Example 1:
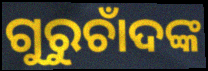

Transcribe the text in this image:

ଗୁରୁଚାଁଦଙ୍କ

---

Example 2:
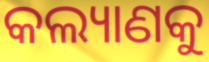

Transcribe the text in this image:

କଲ୍ୟାଣକୁ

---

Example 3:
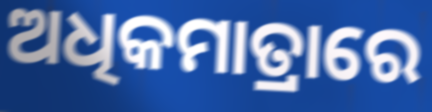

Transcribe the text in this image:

ଅଧିକମାତ୍ରାରେ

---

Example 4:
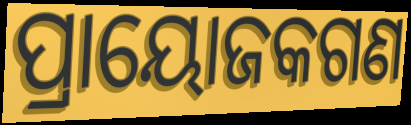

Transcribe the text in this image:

ପ୍ରାୟୋଜକଗଣ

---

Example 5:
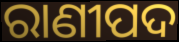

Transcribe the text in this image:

ରାଣୀପଦ